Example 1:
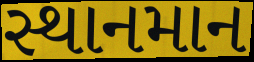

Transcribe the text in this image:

સ્થાનમાન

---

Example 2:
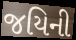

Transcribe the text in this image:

જયિની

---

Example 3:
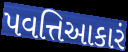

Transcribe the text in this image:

પવત્તિઆકારં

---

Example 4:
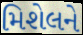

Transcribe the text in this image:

મિશેલને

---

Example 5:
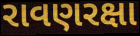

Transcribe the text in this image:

રાવણરક્ષા